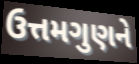
ઉત્તમગુણને